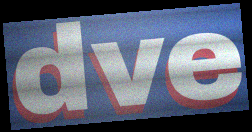
dve